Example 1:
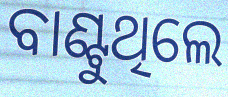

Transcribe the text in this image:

ବାଣ୍ଟୁଥିଲେ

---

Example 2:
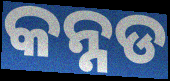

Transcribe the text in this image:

କନ୍ନଡ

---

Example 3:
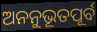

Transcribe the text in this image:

ଅନନୁଭୂତପୂର୍ବ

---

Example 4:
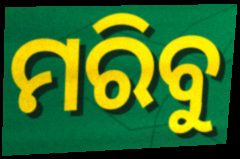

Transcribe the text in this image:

ମରିବୁ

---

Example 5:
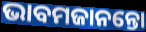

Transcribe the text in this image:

ଭାବମଜାନନ୍ତୋ